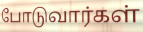
போடுவார்கள்